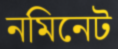
নমিনেট